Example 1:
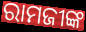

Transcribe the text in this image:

ରାମଜୀଙ୍କ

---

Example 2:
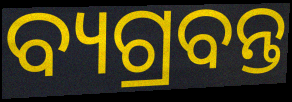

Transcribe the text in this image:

ବ୍ୟଗ୍ରବନ୍ତ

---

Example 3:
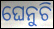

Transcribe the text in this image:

ଘେନୁଚି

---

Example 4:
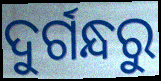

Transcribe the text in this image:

ଦୁର୍ଗନ୍ଧରୁ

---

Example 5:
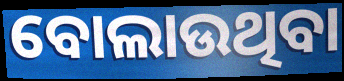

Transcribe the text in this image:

ବୋଲାଉଥିବା